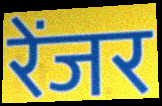
रेंजर